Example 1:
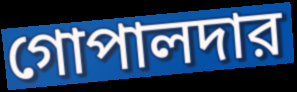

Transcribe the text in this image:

গোপালদার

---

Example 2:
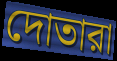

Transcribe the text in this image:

দোতারা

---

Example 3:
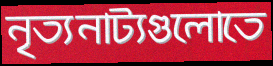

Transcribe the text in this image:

নৃত্যনাট্যগুলোতে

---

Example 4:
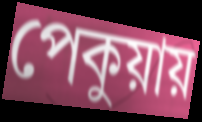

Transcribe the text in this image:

পেকুয়ায়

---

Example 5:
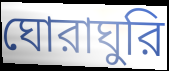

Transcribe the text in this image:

ঘোরাঘুরি